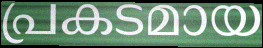
പ്രകടമായ